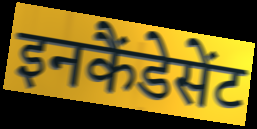
इनकैंडेसेंट